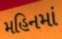
મહિનમાં